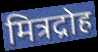
मित्रद्रोह